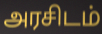
அரசிடம்